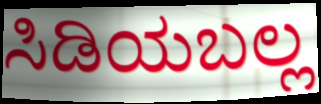
ಸಿಡಿಯಬಲ್ಲ